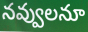
నవ్వులనూ